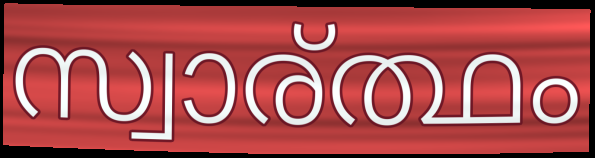
സ്വാര്ത്ഥം